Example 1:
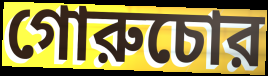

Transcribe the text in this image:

গোরুচোর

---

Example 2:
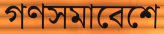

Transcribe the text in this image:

গণসমাবেশে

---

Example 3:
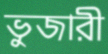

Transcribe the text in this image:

ভুজারী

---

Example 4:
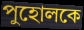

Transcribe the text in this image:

পুহোলকে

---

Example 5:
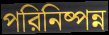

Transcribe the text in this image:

পরিনিষ্পন্ন